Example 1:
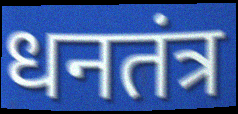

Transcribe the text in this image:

धनतंत्र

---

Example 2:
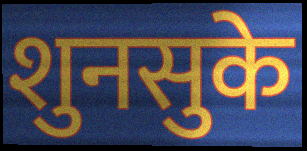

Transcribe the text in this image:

शुनसुके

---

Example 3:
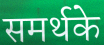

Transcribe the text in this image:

समर्थके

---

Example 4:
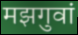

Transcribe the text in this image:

मझगुवां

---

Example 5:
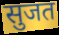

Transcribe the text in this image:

सुजत